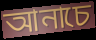
আনাচে